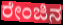
ರೇಂಜಿನ